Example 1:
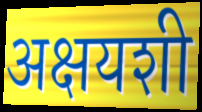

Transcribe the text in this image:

अक्षयशी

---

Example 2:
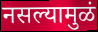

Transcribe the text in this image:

नसल्यामुळं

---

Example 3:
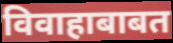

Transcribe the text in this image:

विवाहाबाबत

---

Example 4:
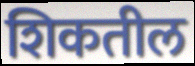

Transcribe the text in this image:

शिकतील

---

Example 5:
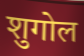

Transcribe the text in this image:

शुगोल